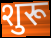
शुरू